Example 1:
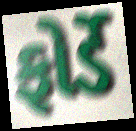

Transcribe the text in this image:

ફોર્ડે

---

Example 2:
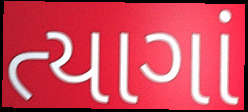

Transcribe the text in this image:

ત્યાગાં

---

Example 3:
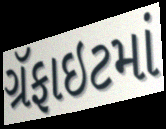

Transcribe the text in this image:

ગ્રૅફાઇટમાં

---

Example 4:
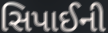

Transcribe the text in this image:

સિપાઈની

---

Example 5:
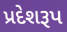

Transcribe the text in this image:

પ્રદેશરૂપ